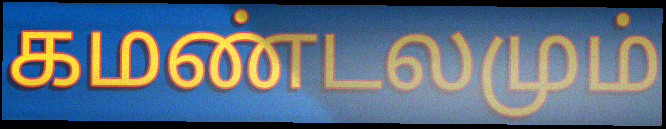
கமண்டலமும்